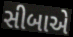
સીબાએ